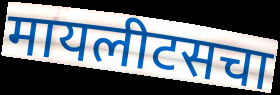
मायलीटसचा